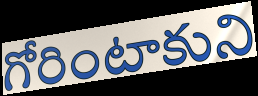
గోరింటాకుని